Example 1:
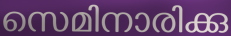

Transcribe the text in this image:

സെമിനാരിക്കു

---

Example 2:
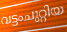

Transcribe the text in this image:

വട്ടംചുറ്റിയ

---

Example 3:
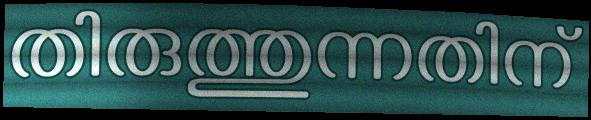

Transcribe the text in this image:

തിരുത്തുന്നതിന്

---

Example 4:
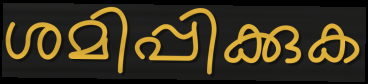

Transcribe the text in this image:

ശമിപ്പിക്കുക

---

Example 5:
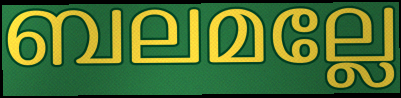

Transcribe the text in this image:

ബലമല്ലേ